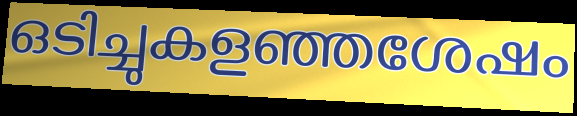
ഒടിച്ചുകളഞ്ഞശേഷം